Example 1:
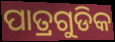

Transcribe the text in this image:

ପାତ୍ରଗୁଡିକ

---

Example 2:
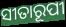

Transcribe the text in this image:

ସୀତାରୂପୀ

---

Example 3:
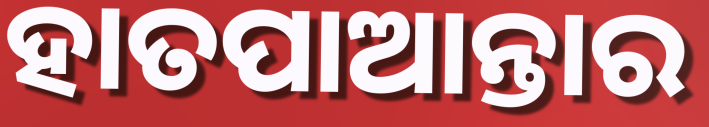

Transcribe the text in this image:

ହାତପାଆନ୍ତାର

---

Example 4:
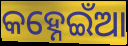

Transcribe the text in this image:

କହ୍ନେଇଁଆ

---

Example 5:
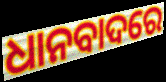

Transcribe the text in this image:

ଧାନବାଦରେ